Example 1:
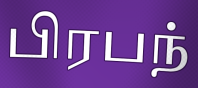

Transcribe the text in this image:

பிரபந்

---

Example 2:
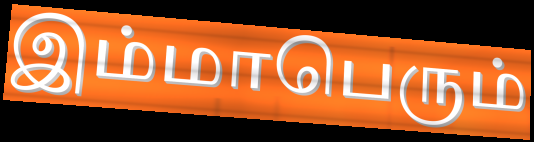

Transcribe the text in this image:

இம்மாபெரும்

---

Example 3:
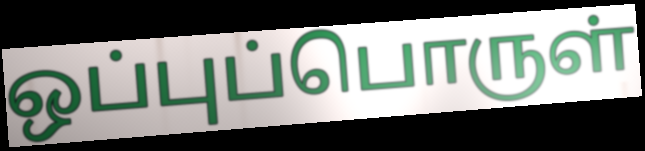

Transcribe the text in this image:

ஒப்புப்பொருள்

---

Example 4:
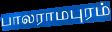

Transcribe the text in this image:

பாலராமபுரம்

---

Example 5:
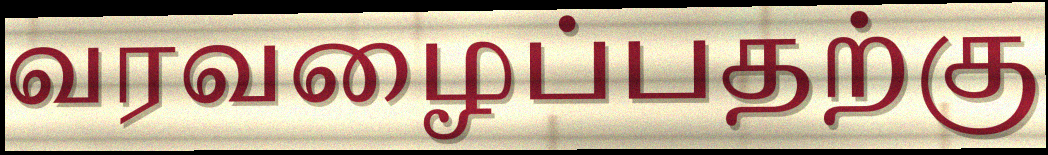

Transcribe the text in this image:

வரவழைப்பதற்கு